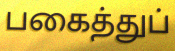
பகைத்துப்